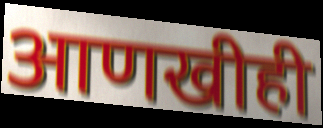
आणखीही